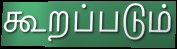
கூறப்படும்